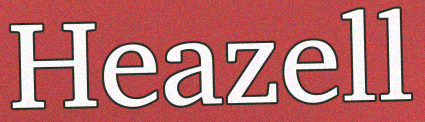
Heazell